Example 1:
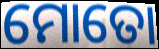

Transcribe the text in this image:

ମୋତୋ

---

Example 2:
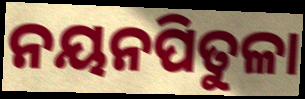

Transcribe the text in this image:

ନୟନପିତୁଳା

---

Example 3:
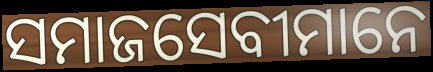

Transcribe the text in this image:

ସମାଜସେବୀମାନେ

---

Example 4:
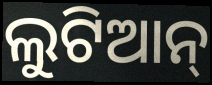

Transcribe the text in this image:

ଲୁଟିଆନ୍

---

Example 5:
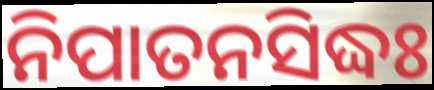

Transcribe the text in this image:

ନିପାତନସିଦ୍ଧଃ